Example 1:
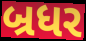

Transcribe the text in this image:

બ્રધર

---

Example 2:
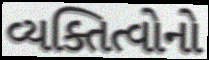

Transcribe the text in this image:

વ્યક્તિત્વોનો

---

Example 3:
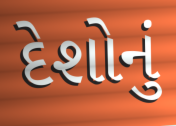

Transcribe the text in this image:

દેશોનું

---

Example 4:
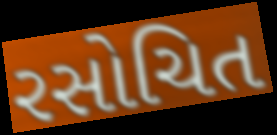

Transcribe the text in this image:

રસોચિત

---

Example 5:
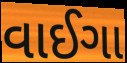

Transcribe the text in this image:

વાઈગા